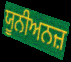
ਯੂਨੀਅਨਜ਼